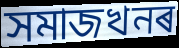
সমাজখনৰ